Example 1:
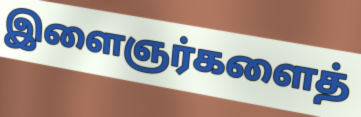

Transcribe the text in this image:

இளைஞர்களைத்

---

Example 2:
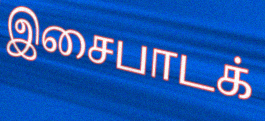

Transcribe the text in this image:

இசைபாடக்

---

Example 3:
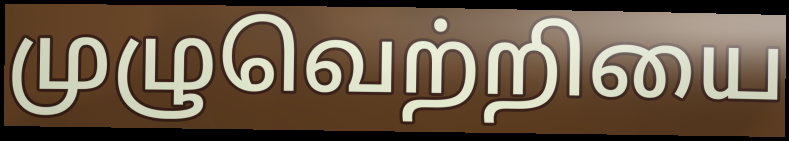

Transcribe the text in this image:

முழுவெற்றியை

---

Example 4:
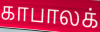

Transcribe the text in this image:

காபாலக்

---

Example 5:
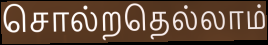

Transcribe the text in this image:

சொல்றதெல்லாம்